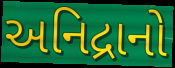
અનિદ્રાનો